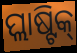
ପ୍ଲାଷ୍ଟିକ୍